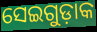
ସେଇଗୁଡ଼ାକ